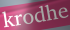
krodhe